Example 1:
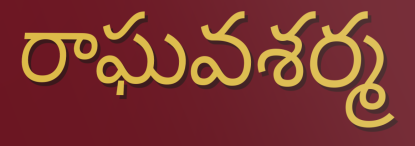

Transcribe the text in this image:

రాఘవశర్మ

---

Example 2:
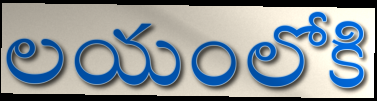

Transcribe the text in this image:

లయంలోకి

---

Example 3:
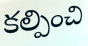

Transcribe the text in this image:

కల్పించి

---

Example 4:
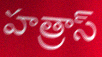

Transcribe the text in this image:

హత్రాస్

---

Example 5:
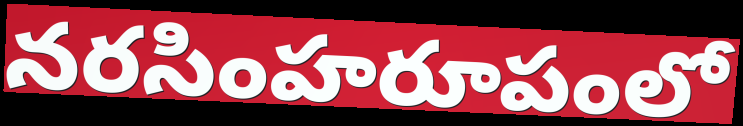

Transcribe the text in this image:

నరసింహరూపంలో